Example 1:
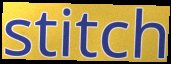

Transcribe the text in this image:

stitch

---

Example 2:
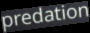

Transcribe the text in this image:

predation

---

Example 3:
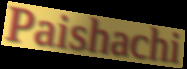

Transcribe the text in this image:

Paishachi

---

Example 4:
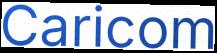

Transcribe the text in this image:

Caricom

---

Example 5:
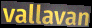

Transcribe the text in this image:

vallavan